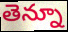
తెన్నూ